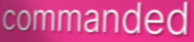
commanded